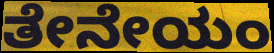
ತೇನೇಯಂ